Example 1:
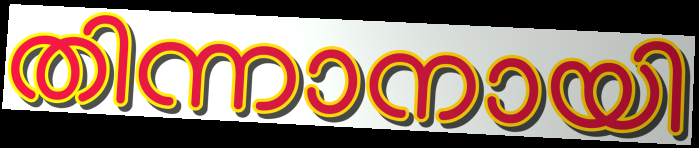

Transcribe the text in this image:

തിന്നാനായി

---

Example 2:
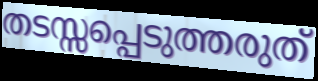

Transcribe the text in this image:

തടസ്സപ്പെടുത്തരുത്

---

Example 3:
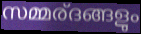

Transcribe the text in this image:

സമ്മര്ദങ്ങളും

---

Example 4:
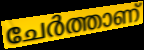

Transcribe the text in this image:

ചേർത്താണ്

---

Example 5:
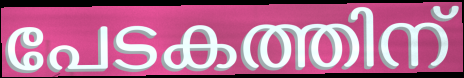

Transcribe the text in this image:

പേടകത്തിന്